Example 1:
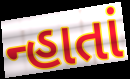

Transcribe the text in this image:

ન્હાતાં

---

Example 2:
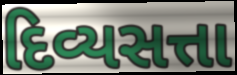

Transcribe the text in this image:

દિવ્યસત્તા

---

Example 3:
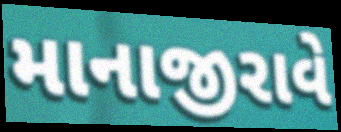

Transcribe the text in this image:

માનાજીરાવે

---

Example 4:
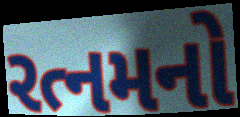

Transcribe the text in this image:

રત્નમનો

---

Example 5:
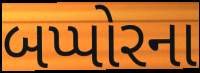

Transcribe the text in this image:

બપ્પોરના